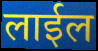
लाईल